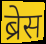
ब्रेस